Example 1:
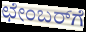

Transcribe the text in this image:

ಛೇಂಬರ್‌ಗೆ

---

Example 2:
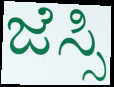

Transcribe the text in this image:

ಜೆಸ್ಸಿ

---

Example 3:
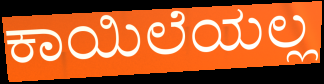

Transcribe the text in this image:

ಕಾಯಿಲೆಯಲ್ಲ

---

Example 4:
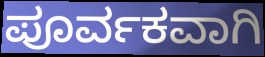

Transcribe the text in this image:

ಪೂರ್ವಕವಾಗಿ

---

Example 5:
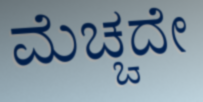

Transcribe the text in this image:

ಮೆಚ್ಚದೇ